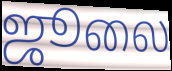
ஜூலை